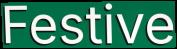
Festive